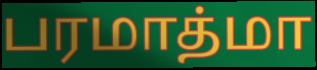
பரமாத்மா